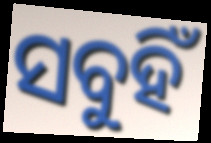
ସବୁହିଁ